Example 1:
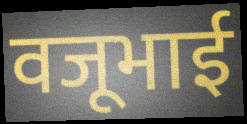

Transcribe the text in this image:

वजूभाई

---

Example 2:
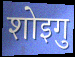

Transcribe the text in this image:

शोइगु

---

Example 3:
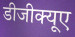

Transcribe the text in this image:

डीजीक्यूए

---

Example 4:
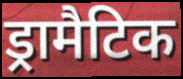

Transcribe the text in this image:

ड्रामैटिक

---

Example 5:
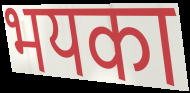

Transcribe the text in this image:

भयका